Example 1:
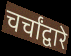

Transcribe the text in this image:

चर्चांद्वारे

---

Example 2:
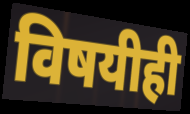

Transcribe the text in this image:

विषयीही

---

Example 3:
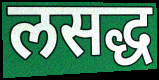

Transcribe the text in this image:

लसद्ध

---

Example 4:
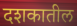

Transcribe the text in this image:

दशकातील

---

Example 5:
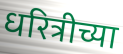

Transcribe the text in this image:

धरित्रीच्या